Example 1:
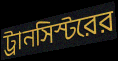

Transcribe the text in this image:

ট্রানসিস্টরের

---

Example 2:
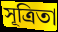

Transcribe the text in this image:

সূত্রিতা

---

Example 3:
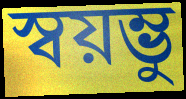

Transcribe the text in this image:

স্বয়ম্ভু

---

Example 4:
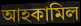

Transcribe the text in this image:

আহকামিল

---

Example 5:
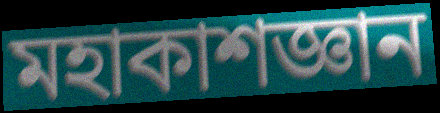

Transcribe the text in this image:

মহাকাশজ্ঞান